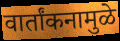
वार्तांकनामुळे